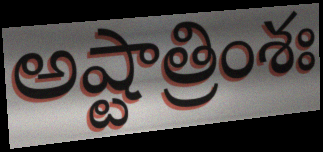
అష్టాత్రింశః